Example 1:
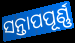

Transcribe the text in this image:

ସନ୍ତାପପୂର୍ଣ୍ଣ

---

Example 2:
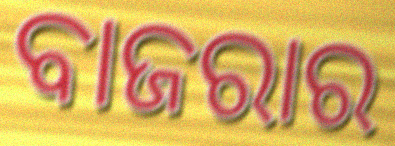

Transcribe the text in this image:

ବାଜରାର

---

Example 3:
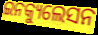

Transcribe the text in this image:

ଇନକ୍ୟୁଲେସନ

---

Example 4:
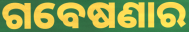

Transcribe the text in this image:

ଗବେଷଣାର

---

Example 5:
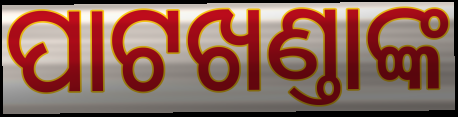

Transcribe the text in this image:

ପାଟଖଣ୍ତାଙ୍କ